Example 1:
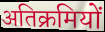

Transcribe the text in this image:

अतिक्रमियों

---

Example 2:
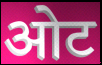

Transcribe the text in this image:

ओट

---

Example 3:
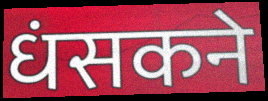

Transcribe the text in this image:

धंसकने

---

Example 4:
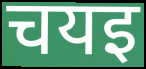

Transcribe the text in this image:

चयइ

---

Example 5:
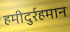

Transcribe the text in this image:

हमीदुर्रहमान